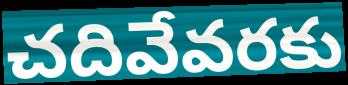
చదివేవరకు